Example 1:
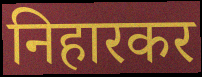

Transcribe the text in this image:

निहारकर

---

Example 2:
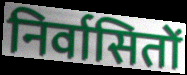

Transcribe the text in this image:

निर्वासितों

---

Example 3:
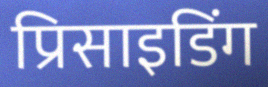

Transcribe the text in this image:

प्रिसाइडिंग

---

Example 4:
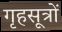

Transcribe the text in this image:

गृहसूत्रों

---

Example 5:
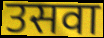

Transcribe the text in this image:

उसवा